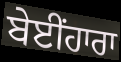
ਬੇਈਂਹਾਰਾ